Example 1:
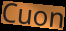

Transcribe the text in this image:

Cuon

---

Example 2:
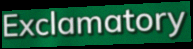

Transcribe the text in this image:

Exclamatory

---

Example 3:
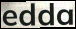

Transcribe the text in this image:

edda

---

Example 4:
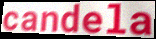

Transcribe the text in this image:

candela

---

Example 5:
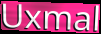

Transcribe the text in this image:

Uxmal